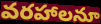
వరహాలనూ